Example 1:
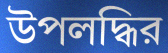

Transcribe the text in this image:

উপলদ্ধির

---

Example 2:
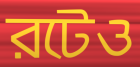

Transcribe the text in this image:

রটেও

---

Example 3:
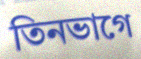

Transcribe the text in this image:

তিনভাগে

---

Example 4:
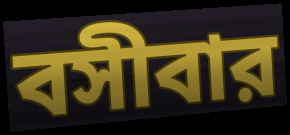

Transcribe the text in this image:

বসীবার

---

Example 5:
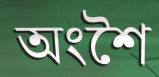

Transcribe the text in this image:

অংশৈ